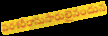
పరశరీరానుసారులైనందున